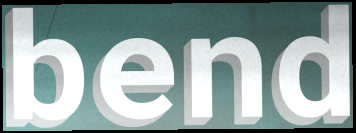
bend